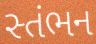
સ્તંભન